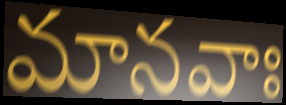
మానవాః